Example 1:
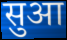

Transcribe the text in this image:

सुआ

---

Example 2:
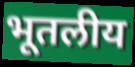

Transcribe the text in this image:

भूतलीय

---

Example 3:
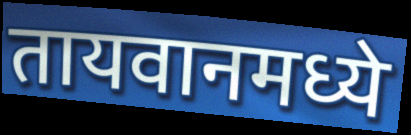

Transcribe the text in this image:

तायवानमध्ये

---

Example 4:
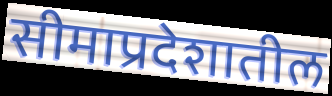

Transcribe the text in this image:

सीमाप्रदेशातील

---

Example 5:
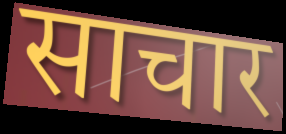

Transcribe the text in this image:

साचार